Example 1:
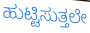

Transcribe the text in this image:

ಹುಟ್ಟಿಸುತ್ತಲೇ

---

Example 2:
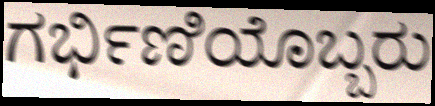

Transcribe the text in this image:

ಗರ್ಭಿಣಿಯೊಬ್ಬರು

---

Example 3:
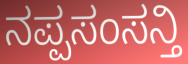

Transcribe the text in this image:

ನಪ್ಪಸಂಸನ್ತಿ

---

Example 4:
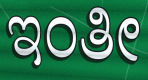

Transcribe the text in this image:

ಇಂತೀ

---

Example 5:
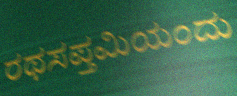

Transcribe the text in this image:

ರಥಸಪ್ತಮಿಯಂದು